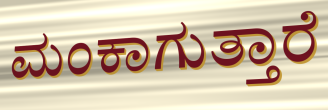
ಮಂಕಾಗುತ್ತಾರೆ